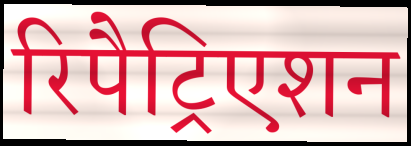
रिपैट्रिएशन